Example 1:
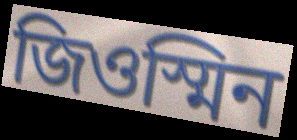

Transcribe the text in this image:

জিওস্মিন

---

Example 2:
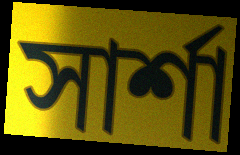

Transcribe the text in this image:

সার্শা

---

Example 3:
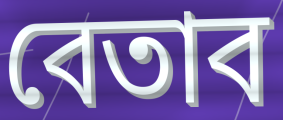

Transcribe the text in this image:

বেতাব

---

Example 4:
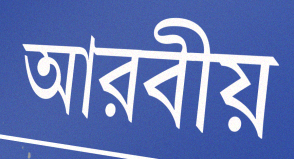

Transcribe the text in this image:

আরবীয়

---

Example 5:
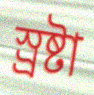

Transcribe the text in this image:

স্র্রষ্টা